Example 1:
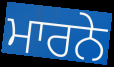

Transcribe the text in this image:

ਮਾਰਨੇ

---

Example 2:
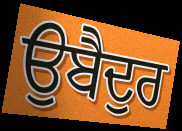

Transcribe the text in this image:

ਉਬੈਦੁਰ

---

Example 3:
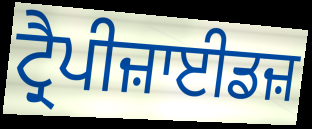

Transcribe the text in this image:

ਟ੍ਰੈਪੀਜ਼ਾਈਡਜ਼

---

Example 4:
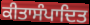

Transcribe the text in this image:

ਕੀਤਾਸੰਪਾਦਿਤ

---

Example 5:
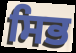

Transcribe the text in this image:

ਸਿਭ